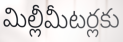
మిల్లీమీటర్లకు